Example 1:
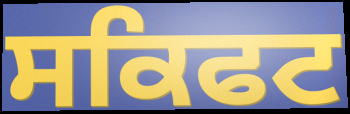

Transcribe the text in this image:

ਸਕਿਫਟ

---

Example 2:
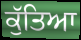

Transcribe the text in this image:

ਕੁੱਤਿਆ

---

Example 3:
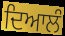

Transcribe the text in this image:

ਦਿਆਲੰ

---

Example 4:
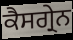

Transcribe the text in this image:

ਕੈਸਗ੍ਰੇਨ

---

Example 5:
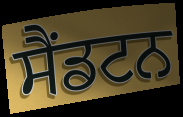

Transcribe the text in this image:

ਸੈਂਡਟਨ